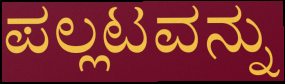
ಪಲ್ಲಟವನ್ನು